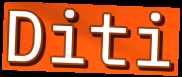
Diti